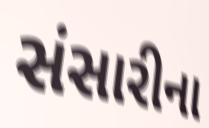
સંસારીના